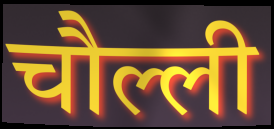
चौल्ली